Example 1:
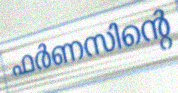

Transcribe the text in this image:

ഫർണസിന്റെ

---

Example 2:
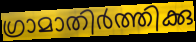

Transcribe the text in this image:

ഗ്രാമാതിർത്തിക്കു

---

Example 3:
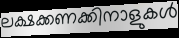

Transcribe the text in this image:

ലക്ഷക്കണക്കിനാളുകൾ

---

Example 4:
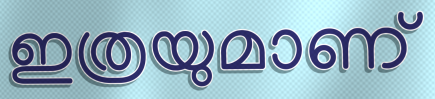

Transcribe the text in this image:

ഇത്രയുമാണ്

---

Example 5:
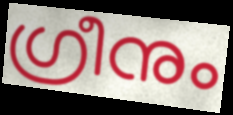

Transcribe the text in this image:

ഗ്രീനും